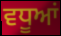
ਵਧੂਆਂ